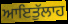
ਆਇਤੁੱਲਾਹ